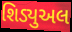
શિડ્યુઅલ